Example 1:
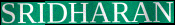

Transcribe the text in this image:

SRIDHARAN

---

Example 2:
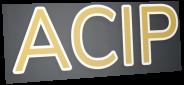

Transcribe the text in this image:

ACIP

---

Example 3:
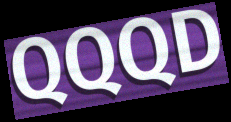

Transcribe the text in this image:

QQQD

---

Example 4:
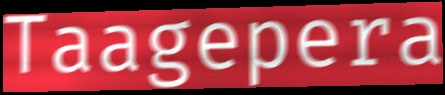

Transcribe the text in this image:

Taagepera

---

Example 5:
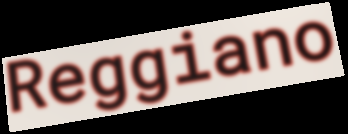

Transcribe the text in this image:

Reggiano